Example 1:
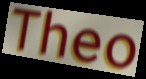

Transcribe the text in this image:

Theo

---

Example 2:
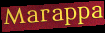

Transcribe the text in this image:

Marappa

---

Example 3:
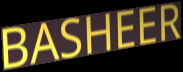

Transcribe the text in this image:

BASHEER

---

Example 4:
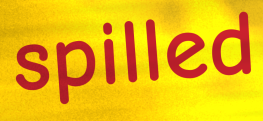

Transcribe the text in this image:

spilled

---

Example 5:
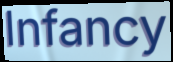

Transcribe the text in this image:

Infancy